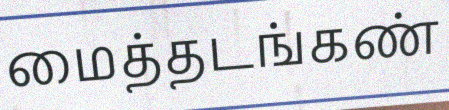
மைத்தடங்கண்